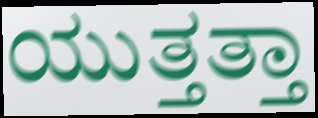
ಯುತ್ತತ್ತಾ